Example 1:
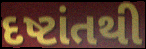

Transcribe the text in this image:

દષ્ટાંતથી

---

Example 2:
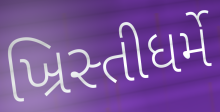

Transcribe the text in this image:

ખ્રિસ્તીધર્મે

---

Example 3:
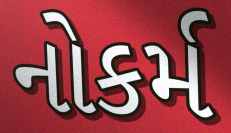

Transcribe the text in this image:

નોકર્મ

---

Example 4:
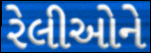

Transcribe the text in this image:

રેલીઓને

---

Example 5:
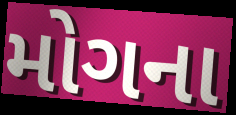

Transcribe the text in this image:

મોગના